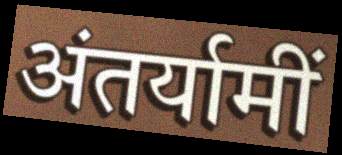
अंतर्यामीं